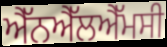
ਐੱਨਐੱਲਐੱਮਸੀ